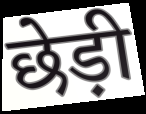
छेड़ी